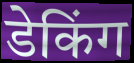
डेकिंग